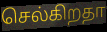
செல்கிறதா